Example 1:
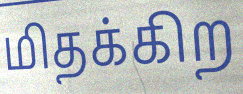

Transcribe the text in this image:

மிதக்கிற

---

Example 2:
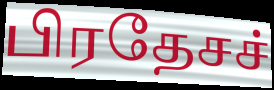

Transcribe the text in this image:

பிரதேசச்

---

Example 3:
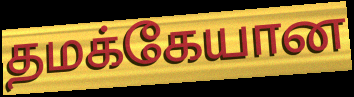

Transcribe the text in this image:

தமக்கேயான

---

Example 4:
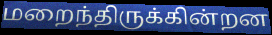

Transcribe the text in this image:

மறைந்திருக்கின்றன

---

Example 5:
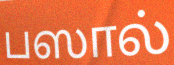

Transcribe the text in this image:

பஸால்